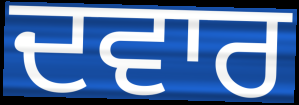
ਦਵਾਰ